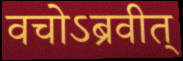
वचोऽब्रवीत्